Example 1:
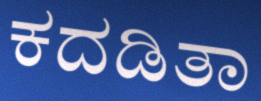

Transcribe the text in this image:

ಕದಡಿತಾ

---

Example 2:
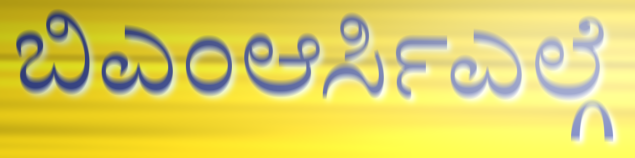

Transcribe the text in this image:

ಬಿಎಂಆರ್ಸಿಎಲ್ಗೆ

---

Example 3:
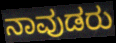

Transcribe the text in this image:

ನಾವುಡರು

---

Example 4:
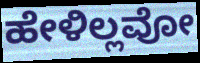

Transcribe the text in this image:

ಹೇಳಿಲ್ಲವೋ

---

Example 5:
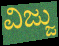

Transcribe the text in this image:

ವಿಜ್ಜು